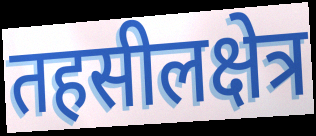
तहसीलक्षेत्र